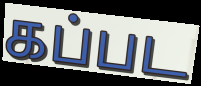
கப்பட